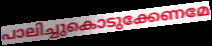
പാലിച്ചുകൊടുക്കേണമേ